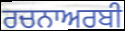
ਰਚਨਾਅਰਬੀ